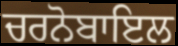
ਚਰਨੋਬਾਇਲ